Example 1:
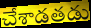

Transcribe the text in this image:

చేశాడతడు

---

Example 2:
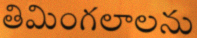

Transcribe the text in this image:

తిమింగలాలను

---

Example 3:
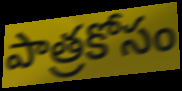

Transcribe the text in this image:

పాత్రకోసం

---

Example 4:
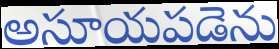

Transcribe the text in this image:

అసూయపడెను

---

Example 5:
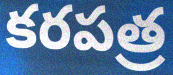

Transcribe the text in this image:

కరపత్ర